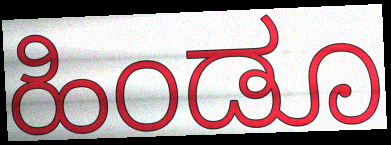
ಹಿಂಡೂ